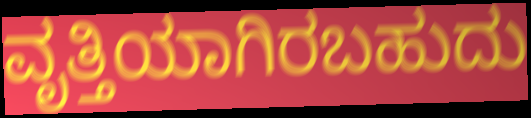
ವೃತ್ತಿಯಾಗಿರಬಹುದು